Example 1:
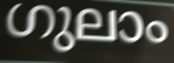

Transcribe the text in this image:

ഗുലാം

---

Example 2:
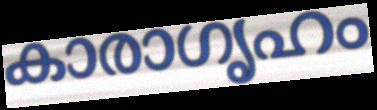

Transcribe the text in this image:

കാരാഗൃഹം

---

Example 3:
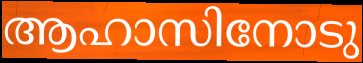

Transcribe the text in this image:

ആഹാസിനോടു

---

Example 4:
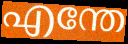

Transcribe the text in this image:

എന്തേ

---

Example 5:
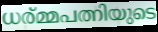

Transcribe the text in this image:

ധര്മ്മപത്നിയുടെ